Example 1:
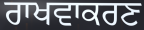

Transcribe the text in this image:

ਰਾਖਵਾਕਰਣ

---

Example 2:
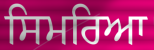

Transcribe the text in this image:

ਸਿਮਰਿਆ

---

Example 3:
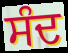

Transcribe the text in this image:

ਸੰਦ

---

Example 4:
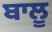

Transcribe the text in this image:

ਬਾਲੂ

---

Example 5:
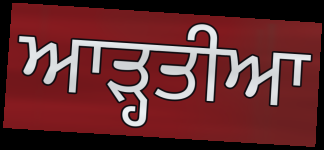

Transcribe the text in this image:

ਆੜ੍ਹਤੀਆ